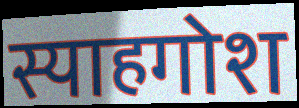
स्याहगोश